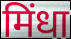
मिंधा